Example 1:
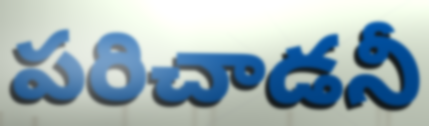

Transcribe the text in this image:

పరిచాడనీ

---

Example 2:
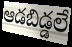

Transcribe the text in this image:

ఆడబిడ్డలే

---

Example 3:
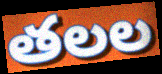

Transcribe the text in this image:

తలల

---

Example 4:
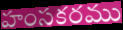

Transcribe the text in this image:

హంసకరము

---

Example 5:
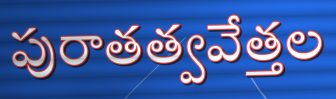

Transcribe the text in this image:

పురాతత్వవేత్తల